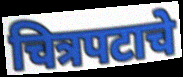
चित्रपटाचे